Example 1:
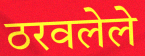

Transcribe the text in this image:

ठरवलेले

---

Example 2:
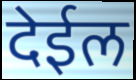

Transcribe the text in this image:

देईल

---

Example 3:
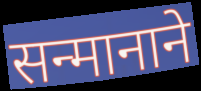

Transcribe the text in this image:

सन्मानाने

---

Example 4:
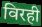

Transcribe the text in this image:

विरही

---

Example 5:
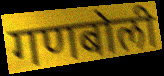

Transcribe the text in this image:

गणबोली